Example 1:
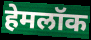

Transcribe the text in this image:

हेमलॉक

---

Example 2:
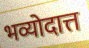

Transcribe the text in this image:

भव्योदात्त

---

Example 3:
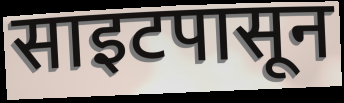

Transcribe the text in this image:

साइटपासून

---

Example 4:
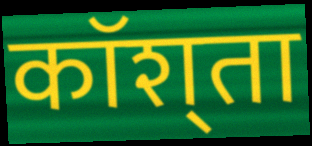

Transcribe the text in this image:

कॉश्ता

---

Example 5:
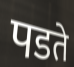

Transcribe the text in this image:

पडते